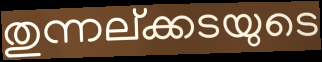
തുന്നല്ക്കടയുടെ